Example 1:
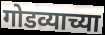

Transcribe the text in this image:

गोडव्याच्या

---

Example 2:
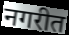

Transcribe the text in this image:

नगरीत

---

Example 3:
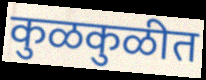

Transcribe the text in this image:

कुळकुळीत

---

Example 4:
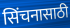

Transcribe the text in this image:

सिंचनासाठी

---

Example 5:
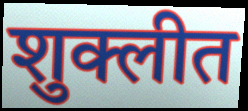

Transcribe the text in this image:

शुक्लीत